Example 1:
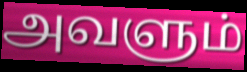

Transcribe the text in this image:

அவளும்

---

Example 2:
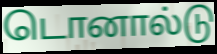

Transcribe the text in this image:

டொனால்டு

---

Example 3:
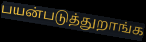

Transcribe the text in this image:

பயன்படுத்துறாங்க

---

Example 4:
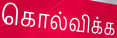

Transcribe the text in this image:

கொல்விக்க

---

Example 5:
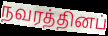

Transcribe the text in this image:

நவரத்தினப்